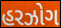
હરઝોગ